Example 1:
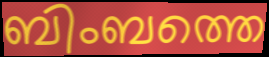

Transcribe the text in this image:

ബിംബത്തെ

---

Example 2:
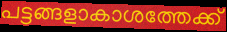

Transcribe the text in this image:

പട്ടങ്ങളാകാശത്തേക്ക്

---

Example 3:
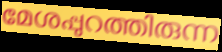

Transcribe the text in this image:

മേശപ്പുറത്തിരുന്ന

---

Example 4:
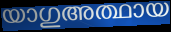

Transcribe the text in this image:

യാഗുഅത്ഥായ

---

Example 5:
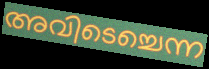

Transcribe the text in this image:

അവിടെച്ചെന്ന